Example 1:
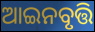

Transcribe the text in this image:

ଆଇନବୃତ୍ତି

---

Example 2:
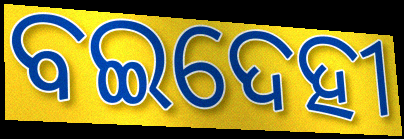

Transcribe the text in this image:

ବଇଦେହୀ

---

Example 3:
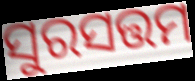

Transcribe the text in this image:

ସୁରସତ୍ତମ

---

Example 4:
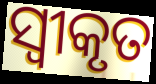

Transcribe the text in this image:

ସ୍ଵୀକୃତ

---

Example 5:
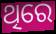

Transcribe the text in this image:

ଥିରେ